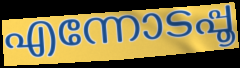
എന്നോടപ്പൂ